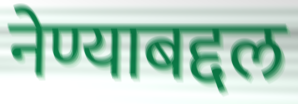
नेण्याबद्दल